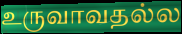
உருவாவதல்ல